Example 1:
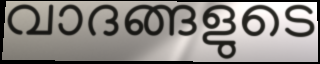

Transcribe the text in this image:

വാദങ്ങളുടെ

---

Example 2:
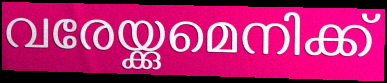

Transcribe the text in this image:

വരേയ്ക്കുമെനിക്ക്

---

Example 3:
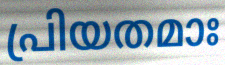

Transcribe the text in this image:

പ്രിയതമാഃ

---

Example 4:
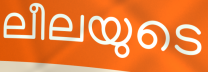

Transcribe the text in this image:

ലീലയുടെ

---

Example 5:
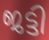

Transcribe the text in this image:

ജട്ടി